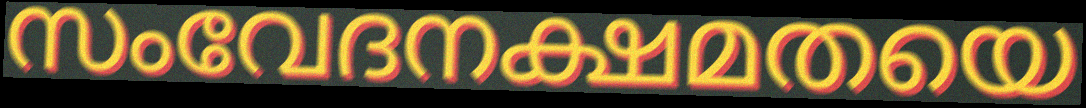
സംവേദനക്ഷമതയെ